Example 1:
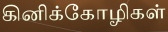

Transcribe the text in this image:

கினிக்கோழிகள்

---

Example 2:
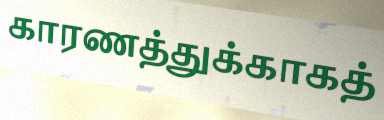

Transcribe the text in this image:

காரணத்துக்காகத்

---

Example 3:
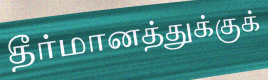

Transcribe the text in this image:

தீர்மானத்துக்குக்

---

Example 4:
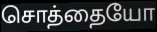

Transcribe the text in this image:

சொத்தையோ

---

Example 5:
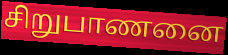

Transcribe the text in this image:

சிறுபாணனை